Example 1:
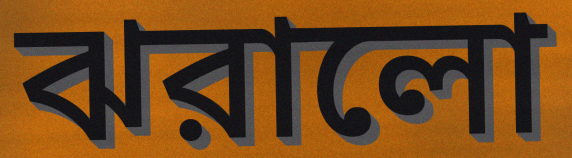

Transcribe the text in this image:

ঝরালো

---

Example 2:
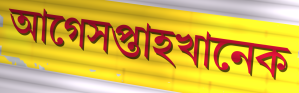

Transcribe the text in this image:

আগেসপ্তাহখানেক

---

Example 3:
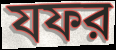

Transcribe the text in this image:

যফর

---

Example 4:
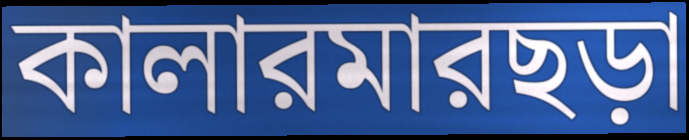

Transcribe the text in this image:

কালারমারছড়া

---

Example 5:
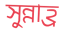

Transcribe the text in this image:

সুন্নাহ্র